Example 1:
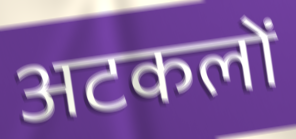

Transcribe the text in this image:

अटकलों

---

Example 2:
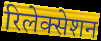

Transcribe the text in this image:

रिलेक्सेशन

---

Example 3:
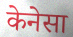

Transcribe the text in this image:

केनेसा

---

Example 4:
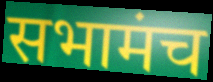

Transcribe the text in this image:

सभामंच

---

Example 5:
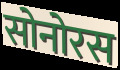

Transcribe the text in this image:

सोनोरस